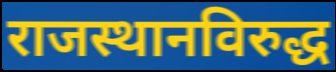
राजस्थानविरुद्ध